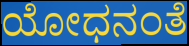
ಯೋಧನಂತೆ